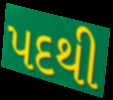
પદથી